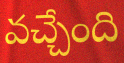
వచ్చేంది